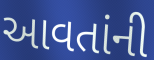
આવતાંની